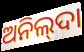
ଅନିଲ୍‌ଦା